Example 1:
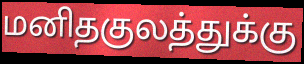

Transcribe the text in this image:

மனிதகுலத்துக்கு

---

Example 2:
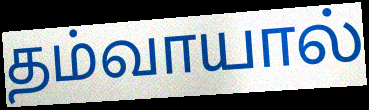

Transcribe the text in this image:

தம்வாயால்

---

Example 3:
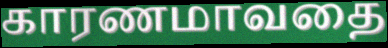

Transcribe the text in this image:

காரணமாவதை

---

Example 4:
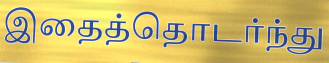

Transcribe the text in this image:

இதைத்தொடர்ந்து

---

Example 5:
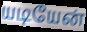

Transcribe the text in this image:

யடியேன்